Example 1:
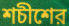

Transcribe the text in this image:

শচীশের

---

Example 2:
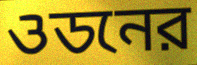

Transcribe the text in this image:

ওডনের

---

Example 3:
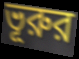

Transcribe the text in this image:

ভূরুর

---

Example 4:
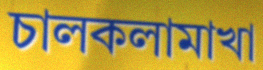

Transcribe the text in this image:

চালকলামাখা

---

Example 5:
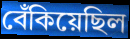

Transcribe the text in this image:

বেঁকিয়েছিল